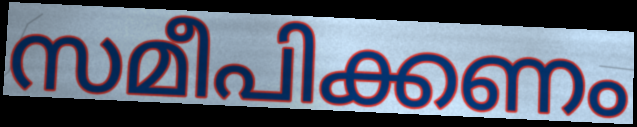
സമീപിക്കണം